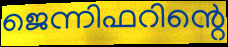
ജെന്നിഫറിന്റെ